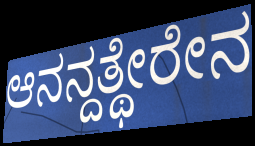
ಆನನ್ದತ್ಥೇರೇನ